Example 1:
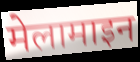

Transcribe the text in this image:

मेलामाइन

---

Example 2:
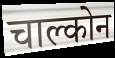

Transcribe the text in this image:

चाल्कोन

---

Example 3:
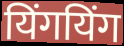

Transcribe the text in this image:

यिंगयिंग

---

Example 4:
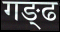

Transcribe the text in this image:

गङ्ढ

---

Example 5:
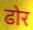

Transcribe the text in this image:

ढोर